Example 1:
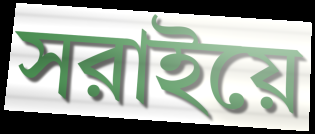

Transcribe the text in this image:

সরাইয়ে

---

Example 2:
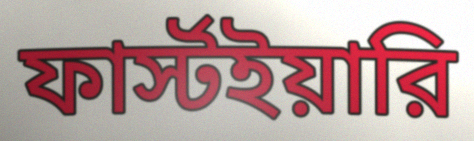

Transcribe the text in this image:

ফার্স্টইয়ারি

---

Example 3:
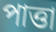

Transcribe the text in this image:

পাত্তা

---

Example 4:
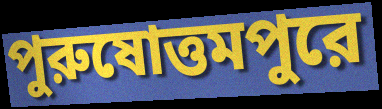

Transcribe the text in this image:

পুরুষোত্তমপুরে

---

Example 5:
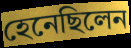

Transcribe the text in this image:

হেনেছিলেন